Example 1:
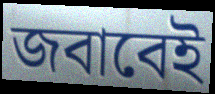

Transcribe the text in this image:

জবাবেই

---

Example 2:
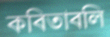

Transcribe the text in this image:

কবিতাবলি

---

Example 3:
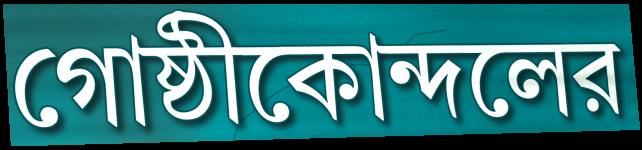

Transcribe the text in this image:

গোষ্ঠীকোন্দলের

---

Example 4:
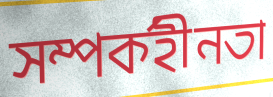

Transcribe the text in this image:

সম্পর্কহীনতা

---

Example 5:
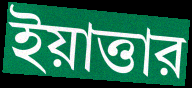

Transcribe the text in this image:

ইয়াত্তার